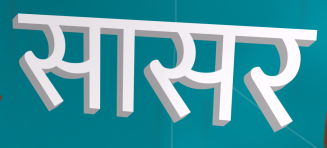
सासर